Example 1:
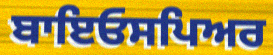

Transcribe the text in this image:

ਬਾਇਓਸਪਿਅਰ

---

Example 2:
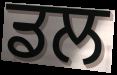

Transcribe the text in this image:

ਡਲ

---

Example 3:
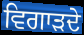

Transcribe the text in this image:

ਵਿਗਾੜਦੇ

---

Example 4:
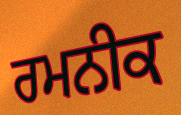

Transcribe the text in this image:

ਰਮਨੀਕ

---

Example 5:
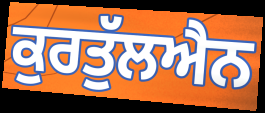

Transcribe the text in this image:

ਕੁਰਤੁੱਲਐਨ